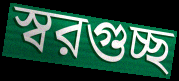
স্বরগুচ্ছ